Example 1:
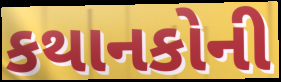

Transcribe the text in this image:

કથાનકોની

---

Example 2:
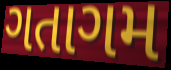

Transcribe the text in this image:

ગતાગમ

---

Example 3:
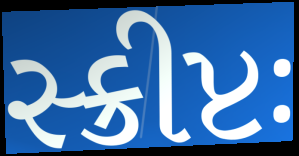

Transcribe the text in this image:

સ્ક્રીપ્ટઃ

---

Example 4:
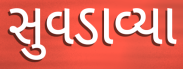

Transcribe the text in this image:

સુવડાવ્યા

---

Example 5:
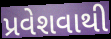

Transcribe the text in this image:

પ્રવેશવાથી